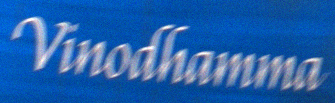
Vinodhamma